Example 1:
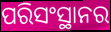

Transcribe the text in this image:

ପରିସଂସ୍ଥାନର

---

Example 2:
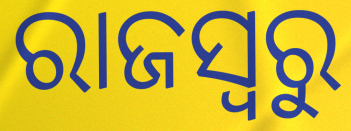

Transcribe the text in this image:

ରାଜସ୍ୱରୁ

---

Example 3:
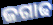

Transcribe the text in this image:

ଜଗାଢ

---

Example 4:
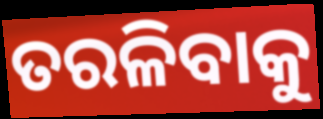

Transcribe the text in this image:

ତରଳିବାକୁ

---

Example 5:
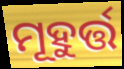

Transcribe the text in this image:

ମୂହୁର୍ତ୍ତ